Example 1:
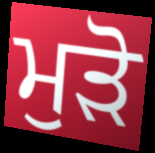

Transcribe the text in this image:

ਮੁਡ਼ੋ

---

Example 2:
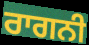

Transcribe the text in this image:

ਰਾਗਨੀ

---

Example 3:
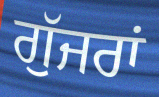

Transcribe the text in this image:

ਗੁੱਜਰਾਂ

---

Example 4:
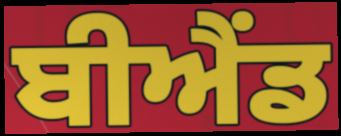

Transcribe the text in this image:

ਬੀਐਂਡ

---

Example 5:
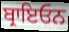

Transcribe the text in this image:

ਬ੍ਰਾਇਓਨ